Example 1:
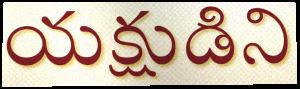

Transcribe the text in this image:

యక్షుడిని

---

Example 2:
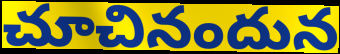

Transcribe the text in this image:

చూచినందున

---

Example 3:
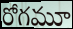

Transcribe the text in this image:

రోగమూ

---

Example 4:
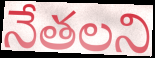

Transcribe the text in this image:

నేతలని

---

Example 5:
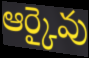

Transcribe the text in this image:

ఆర్కైవు